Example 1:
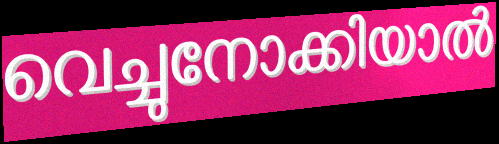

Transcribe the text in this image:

വെച്ചുനോക്കിയാൽ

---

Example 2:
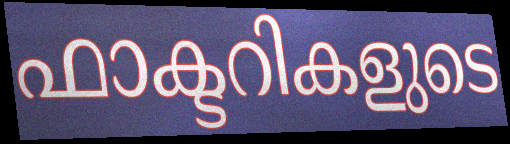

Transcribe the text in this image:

ഫാക്ടറികളുടെ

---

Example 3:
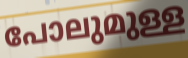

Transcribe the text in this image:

പോലുമുള്ള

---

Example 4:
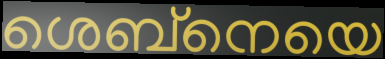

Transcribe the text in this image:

ശെബ്നെയെ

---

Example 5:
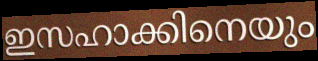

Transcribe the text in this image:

ഇസഹാക്കിനെയും